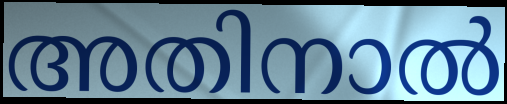
അതിനാൽ